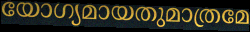
യോഗ്യമായതുമാത്രമേ